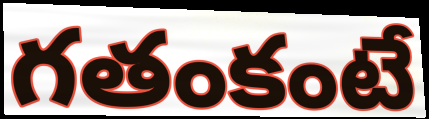
గతంకంటే